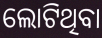
ଲୋଟିଥିବା